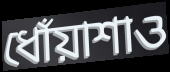
ধোঁয়াশাও